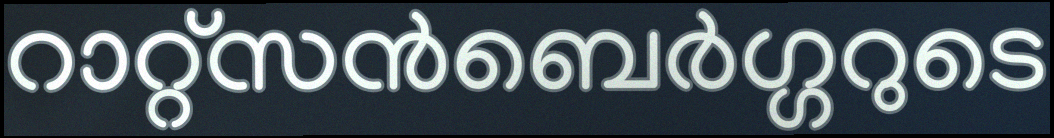
റാറ്റ്സൻബെർഗ്ഗറുടെ